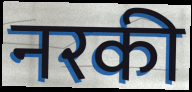
नरकी